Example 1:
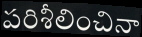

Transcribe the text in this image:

పరిశీలించినా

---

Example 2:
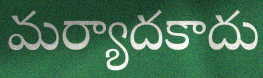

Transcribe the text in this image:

మర్యాదకాదు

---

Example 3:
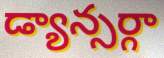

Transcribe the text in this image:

డ్యాన్సర్గా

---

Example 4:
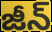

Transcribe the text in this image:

జీన్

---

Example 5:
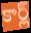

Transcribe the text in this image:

కార్ల్